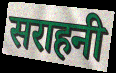
सराहनी